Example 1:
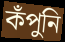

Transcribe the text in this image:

কঁপুনি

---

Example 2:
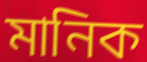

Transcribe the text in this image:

মানিক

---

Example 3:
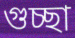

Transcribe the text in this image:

গুচ্ছা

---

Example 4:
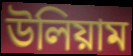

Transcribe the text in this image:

উলিয়াম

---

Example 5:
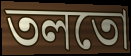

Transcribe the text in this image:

তলতো